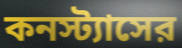
কনস্ট্যাসের